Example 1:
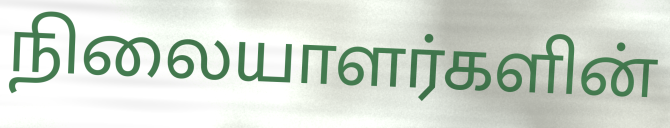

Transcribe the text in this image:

நிலையாளர்களின்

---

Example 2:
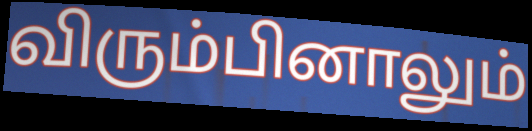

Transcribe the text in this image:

விரும்பினாலும்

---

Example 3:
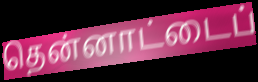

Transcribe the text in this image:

தென்னாட்டைப்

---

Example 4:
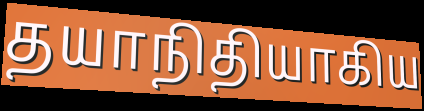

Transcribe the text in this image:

தயாநிதியாகிய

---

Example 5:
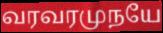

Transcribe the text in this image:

வரவரமுநயே